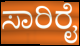
ಸಾರಿರೈ